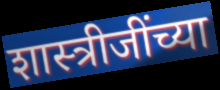
शास्त्रीजींच्या